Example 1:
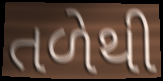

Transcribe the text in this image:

તળેથી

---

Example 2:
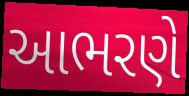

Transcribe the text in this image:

આભરણે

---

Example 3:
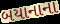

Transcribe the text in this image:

બયાનાના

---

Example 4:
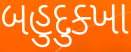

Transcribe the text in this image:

બહુદુક્ખા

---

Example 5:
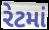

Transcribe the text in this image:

રેટમાં